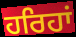
ਹਰਿਹਾਂ